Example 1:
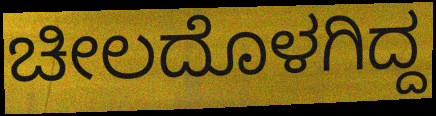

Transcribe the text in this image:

ಚೀಲದೊಳಗಿದ್ದ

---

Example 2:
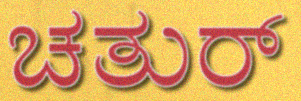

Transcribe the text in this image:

ಚತುರ್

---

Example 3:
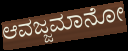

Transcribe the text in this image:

ಆವಜ್ಜಮಾನೋ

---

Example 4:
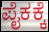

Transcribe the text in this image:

ಪೈಕಕ್ಕೆ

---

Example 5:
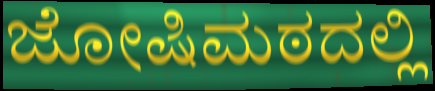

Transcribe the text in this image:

ಜೋಷಿಮಠದಲ್ಲಿ